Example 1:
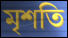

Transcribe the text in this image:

মৃশতি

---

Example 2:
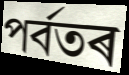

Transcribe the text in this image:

পৰ্বতৰ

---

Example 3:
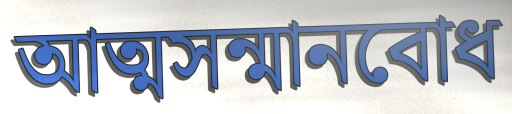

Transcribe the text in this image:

আত্মসন্মানবোধ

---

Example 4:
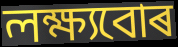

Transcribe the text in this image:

লক্ষ্যবোৰ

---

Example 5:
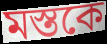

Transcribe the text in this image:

মস্তকে